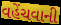
વહેંચવાની